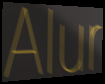
Alur